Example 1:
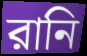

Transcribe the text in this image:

রানি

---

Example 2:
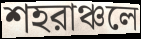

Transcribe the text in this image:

শহরাঞ্চলে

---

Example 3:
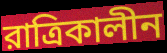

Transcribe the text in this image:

রাত্রিকালীন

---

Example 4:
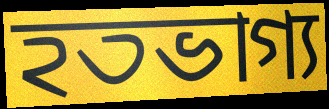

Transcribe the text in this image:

হতভাগ্য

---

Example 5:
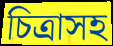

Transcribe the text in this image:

চিত্রাসহ